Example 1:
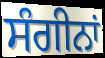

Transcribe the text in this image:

ਸੰਗੀਨਾਂ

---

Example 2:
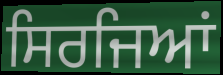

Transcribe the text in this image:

ਸਿਰਜਿਆਂ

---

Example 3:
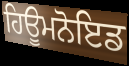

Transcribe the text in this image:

ਹਿਊਮਨੋਇਡ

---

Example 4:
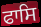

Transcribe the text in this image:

ਫਾਸਿ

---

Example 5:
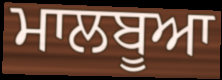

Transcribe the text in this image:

ਮਾਲਬੂਆ